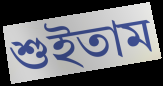
শুইতাম